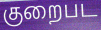
குறைபட